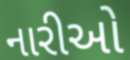
નારીઓ